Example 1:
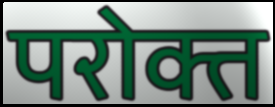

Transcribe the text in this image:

परोक्त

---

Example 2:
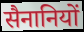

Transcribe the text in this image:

सैनानियों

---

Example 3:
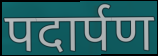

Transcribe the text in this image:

पदार्पण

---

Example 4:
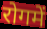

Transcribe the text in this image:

रोगमें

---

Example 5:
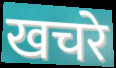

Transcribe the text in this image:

खचरे